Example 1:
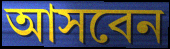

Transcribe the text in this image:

আসবেন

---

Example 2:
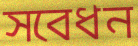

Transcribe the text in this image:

সবেধন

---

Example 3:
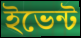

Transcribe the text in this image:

ইভেন্ট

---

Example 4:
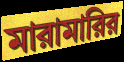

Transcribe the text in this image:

মারামারির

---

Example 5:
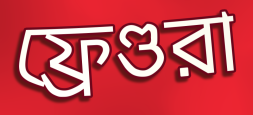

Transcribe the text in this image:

ফ্রেণ্ডরা